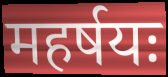
महर्षयः